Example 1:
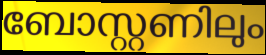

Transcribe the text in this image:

ബോസ്റ്റണിലും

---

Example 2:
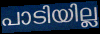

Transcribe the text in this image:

പാടിയില്ല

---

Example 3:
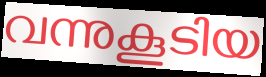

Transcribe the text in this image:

വന്നുകൂടിയ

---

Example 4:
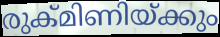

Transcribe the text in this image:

രുക്മിണിയ്ക്കും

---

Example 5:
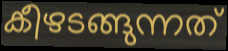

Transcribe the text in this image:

കീഴടങ്ങുന്നത്